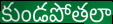
కుండపోతలా